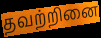
தவற்றினை